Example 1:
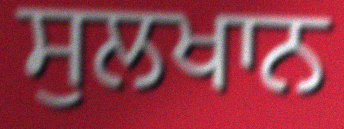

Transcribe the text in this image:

ਸੁਲਖਾਨ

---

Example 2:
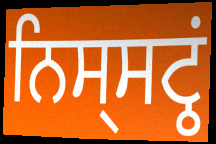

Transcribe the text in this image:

ਨਿਸ੍ਸਟ੍ਠਂ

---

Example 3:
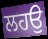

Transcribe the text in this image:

ਲਹਉ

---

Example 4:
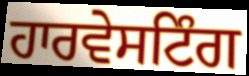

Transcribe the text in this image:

ਹਾਰਵੇਸਟਿੰਗ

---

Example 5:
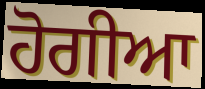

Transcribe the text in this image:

ਹੋਗੀਆ